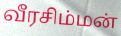
வீரசிம்மன்